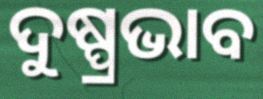
ଦୁଷ୍ପ୍ରଭାବ